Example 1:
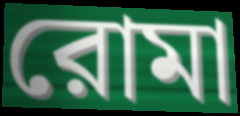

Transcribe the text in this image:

রোমা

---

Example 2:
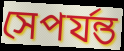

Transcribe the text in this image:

সেপর্যন্ত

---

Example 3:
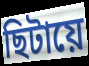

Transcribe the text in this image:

ছিটায়ে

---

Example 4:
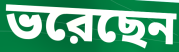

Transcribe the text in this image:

ভরেছেন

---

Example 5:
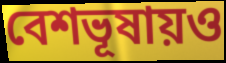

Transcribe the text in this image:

বেশভূষায়ও